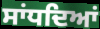
ਸਾਂਧਦਿਆਂ